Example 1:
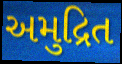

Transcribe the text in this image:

અમુદ્રિત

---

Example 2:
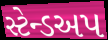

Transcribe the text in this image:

સ્ટેન્ડઅપ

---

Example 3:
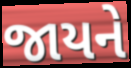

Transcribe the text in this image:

જાયને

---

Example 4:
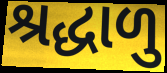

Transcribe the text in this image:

શ્રદ્ધાળુ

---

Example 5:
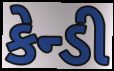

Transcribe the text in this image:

કેન્ડી